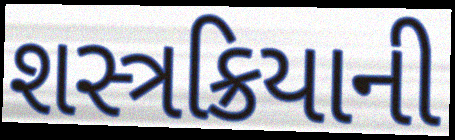
શસ્ત્રક્રિયાની